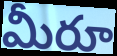
మీరూ